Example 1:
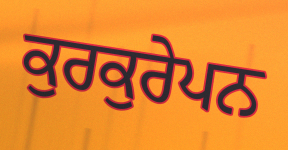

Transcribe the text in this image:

ਕੁਰਕੁਰੇਪਨ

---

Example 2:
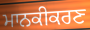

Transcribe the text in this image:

ਮਾਨਕੀਕਰਣ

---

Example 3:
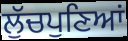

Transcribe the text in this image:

ਲੁੱਚਪੁਣਿਆਂ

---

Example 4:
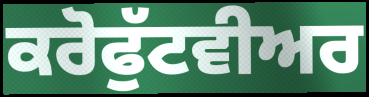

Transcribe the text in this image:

ਕਰੋਫੁੱਟਵੀਅਰ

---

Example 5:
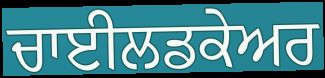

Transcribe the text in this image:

ਚਾਈਲਡਕੇਅਰ